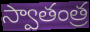
స్వాతంత్ర